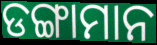
ଡଙ୍ଗାମାନ